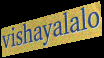
vishayalalo